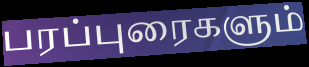
பரப்புரைகளும்